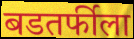
बडतर्फीला